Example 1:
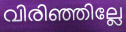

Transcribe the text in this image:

വിരിഞ്ഞില്ലേ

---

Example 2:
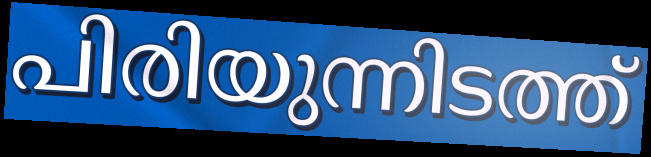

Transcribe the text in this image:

പിരിയുന്നിടത്ത്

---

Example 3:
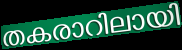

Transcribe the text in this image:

തകരാറിലായി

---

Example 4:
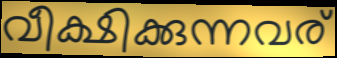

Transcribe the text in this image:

വീക്ഷിക്കുന്നവര്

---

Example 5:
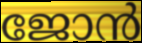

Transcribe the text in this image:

ജോൻ